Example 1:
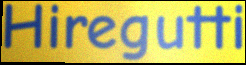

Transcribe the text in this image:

Hiregutti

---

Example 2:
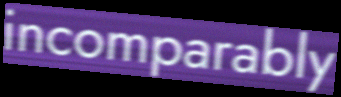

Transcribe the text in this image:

incomparably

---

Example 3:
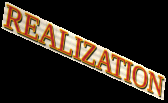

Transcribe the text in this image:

REALIZATION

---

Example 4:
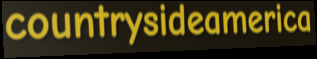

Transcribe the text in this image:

countrysideamerica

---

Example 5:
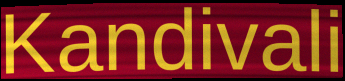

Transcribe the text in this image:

Kandivali